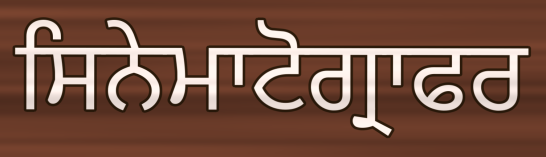
ਸਿਨੇਮਾਟੋਗ੍ਰਾਫਰ